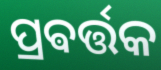
ପ୍ରଵର୍ତ୍ତକ